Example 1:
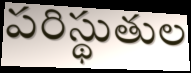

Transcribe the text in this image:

పరిస్థుతుల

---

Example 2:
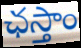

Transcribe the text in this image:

ఛస్తాం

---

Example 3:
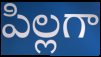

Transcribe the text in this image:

పిల్లగా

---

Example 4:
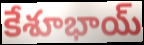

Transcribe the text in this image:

కేశూభాయ్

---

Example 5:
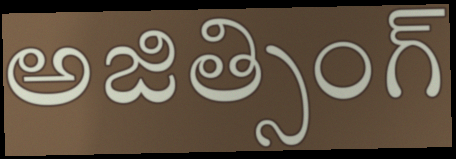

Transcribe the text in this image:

అజిత్సింగ్